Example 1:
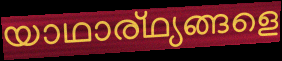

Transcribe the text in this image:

യാഥാര്ഥ്യങ്ങളെ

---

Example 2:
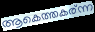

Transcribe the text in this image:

ആകെത്തകര്ന്ന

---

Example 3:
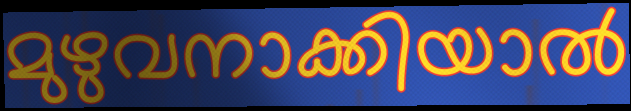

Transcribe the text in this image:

മുഴുവനാക്കിയാൽ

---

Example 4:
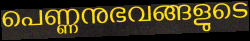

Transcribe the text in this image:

പെണ്ണനുഭവങ്ങളുടെ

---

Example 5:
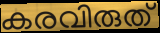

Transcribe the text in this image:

കരവിരുത്